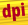
dpi